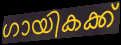
ഗായികക്ക്